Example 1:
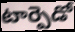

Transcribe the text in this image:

టార్పెడో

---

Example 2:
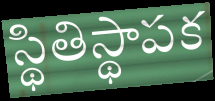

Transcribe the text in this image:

స్థితిస్థాపక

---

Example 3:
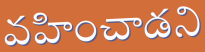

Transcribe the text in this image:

వహించాడని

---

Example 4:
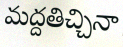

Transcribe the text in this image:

మద్దతిచ్చినా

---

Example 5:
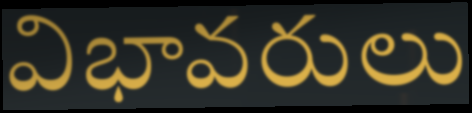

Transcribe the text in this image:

విభావరులు